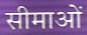
सीमाओं